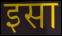
इसा